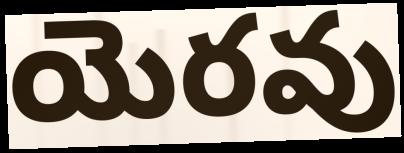
యెరవు